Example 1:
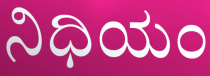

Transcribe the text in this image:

ನಿಧಿಯಂ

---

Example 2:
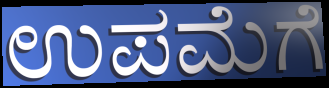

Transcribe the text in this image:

ಉಪಮೆಗೆ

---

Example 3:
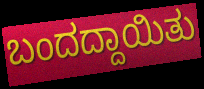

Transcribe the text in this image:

ಬಂದದ್ದಾಯಿತು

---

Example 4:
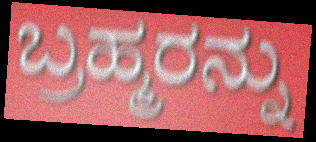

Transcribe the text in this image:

ಬ್ರಹ್ಮರನ್ನು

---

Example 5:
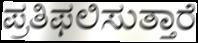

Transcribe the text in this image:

ಪ್ರತಿಫಲಿಸುತ್ತಾರೆ